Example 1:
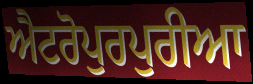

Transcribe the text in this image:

ਐਟਰੋਪੁਰਪੁਰੀਆ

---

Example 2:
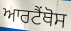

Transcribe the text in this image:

ਆਰਟੈਂਥੋਸ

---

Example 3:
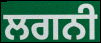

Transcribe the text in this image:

ਲਗਨੀ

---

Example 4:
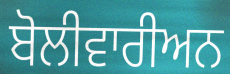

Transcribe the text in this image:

ਬੋਲੀਵਾਰੀਅਨ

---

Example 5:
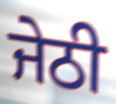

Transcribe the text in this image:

ਜੇਠੀ